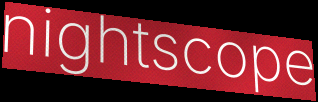
nightscope